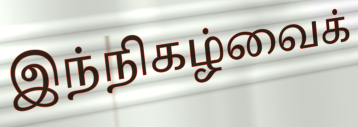
இந்நிகழ்வைக்